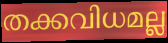
തക്കവിധമല്ല